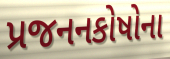
પ્રજનનકોષોના